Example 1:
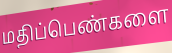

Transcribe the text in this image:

மதிப்பெண்களை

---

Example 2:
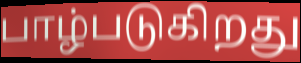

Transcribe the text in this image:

பாழ்படுகிறது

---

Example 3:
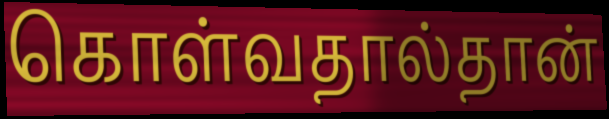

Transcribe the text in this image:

கொள்வதால்தான்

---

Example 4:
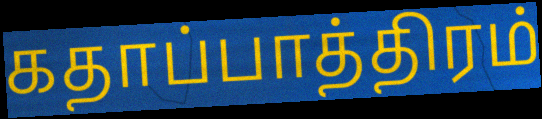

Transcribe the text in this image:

கதாப்பாத்திரம்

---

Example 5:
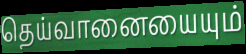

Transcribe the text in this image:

தெய்வானையையும்